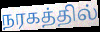
நரகத்தில்